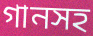
গানসহ